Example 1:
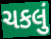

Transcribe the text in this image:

ચકલું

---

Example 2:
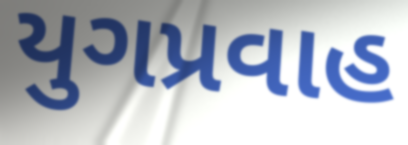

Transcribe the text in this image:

યુગપ્રવાહ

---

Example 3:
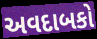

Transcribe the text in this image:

અવદાબકો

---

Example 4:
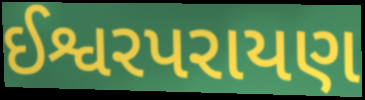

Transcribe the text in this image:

ઈશ્વરપરાયણ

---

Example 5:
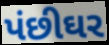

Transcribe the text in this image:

પંછીઘર